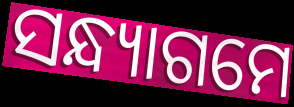
ସନ୍ଧ୍ୟାଗମେ